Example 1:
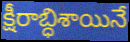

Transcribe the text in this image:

క్షీరాబ్ధిశాయినే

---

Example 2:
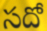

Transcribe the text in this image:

సదో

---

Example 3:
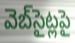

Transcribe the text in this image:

వెబ్‌సైట్లపై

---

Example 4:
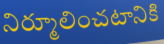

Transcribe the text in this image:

నిర్మూలించటానికి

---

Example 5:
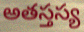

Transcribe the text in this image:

అతస్తస్య